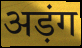
अड़ंग